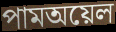
পামঅয়েল